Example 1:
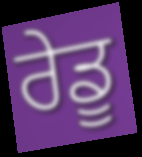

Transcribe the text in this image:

ਰੇਡੂ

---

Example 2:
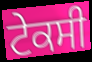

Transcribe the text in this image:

ਟੇਕਸੀ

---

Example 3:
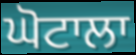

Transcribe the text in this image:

ਘੋਟਾਲਾ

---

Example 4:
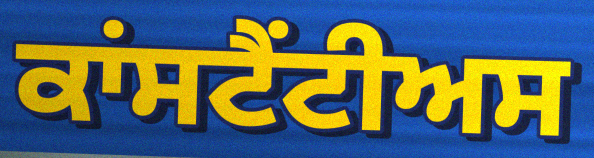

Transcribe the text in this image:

ਕਾਂਸਟੈਂਟੀਅਸ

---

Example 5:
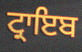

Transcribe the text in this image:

ਟ੍ਰਾਇਬ